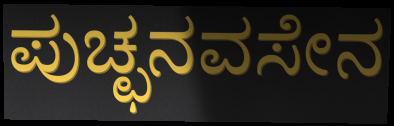
ಪುಚ್ಛನವಸೇನ